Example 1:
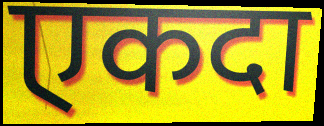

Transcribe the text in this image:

एकदा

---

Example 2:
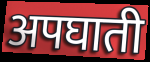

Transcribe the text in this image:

अपघाती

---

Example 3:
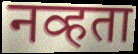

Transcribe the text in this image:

नव्हता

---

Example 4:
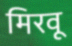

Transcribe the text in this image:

मिरवू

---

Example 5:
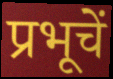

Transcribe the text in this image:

प्रभूचें